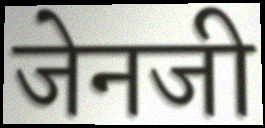
जेनजी